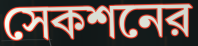
সেকশনের